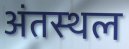
अंतस्थल